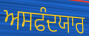
ਅਸਫੰਦਯਾਰ